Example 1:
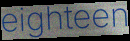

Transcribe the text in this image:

eighteen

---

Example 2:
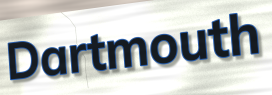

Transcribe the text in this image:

Dartmouth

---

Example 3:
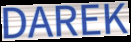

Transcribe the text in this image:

DAREK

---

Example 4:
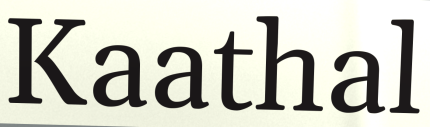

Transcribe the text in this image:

Kaathal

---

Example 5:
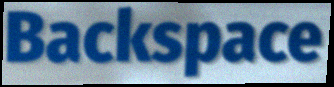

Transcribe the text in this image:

Backspace